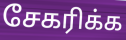
சேகரிக்க